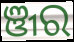
ଞ୍ଜର